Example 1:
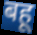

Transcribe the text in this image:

बहू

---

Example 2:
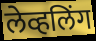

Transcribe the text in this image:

लेव्हलिंग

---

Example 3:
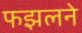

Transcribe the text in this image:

फझलने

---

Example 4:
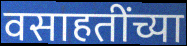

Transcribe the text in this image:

वसाहतींच्या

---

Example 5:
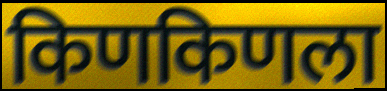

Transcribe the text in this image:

किणकिणला